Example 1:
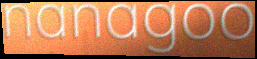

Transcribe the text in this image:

nanagoo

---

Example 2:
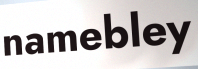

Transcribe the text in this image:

namebley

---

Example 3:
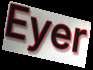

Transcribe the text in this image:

Eyer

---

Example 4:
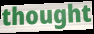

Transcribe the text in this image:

thought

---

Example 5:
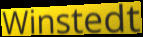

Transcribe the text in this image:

Winstedt